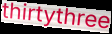
thirtythree